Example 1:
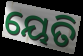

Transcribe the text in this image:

ୟେତି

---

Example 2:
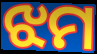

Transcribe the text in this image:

ଝମ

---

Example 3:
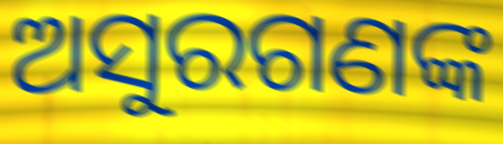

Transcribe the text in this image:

ଅସୁରଗଣଙ୍କ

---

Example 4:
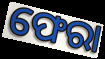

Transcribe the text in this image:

ଫେରା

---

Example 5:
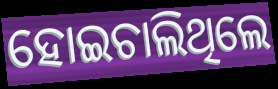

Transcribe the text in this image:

ହୋଇଚାଲିଥିଲେ